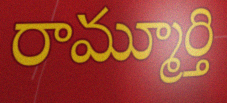
రామ్మూర్తి